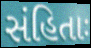
સંહિતાઃ